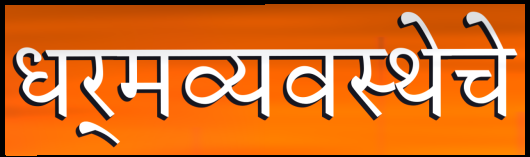
धर्मव्यवस्थेचे